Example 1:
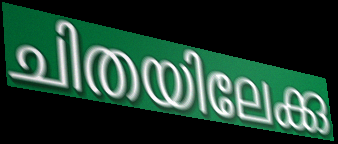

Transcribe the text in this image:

ചിതയിലേക്കു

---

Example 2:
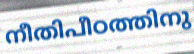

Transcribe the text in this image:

നീതിപീഠത്തിനു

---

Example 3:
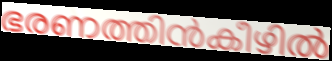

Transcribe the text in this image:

ഭരണത്തിൻകീഴിൽ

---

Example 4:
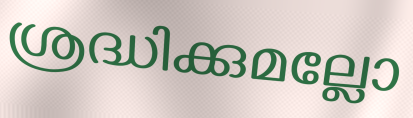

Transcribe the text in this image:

ശ്രദ്ധിക്കുമല്ലോ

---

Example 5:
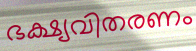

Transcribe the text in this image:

ഭക്ഷ്യവിതരണം